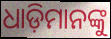
ଧାଡ଼ିମାନଙ୍କୁ